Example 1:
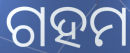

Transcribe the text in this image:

ଗହମ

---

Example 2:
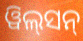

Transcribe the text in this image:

ୱିଲ୍‌ସନ୍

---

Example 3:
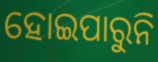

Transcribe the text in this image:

ହୋଇପାରୁନି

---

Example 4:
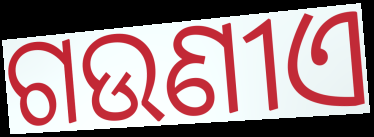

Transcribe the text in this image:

ଗଉଣୀଏ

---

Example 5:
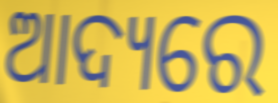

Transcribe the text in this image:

ଆଦ୍ୟରେ